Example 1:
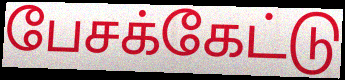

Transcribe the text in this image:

பேசக்கேட்டு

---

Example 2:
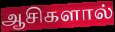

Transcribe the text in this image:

ஆசிகளால்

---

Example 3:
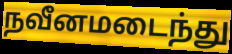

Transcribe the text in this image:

நவீனமடைந்து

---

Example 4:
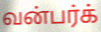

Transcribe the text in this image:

வன்பர்க்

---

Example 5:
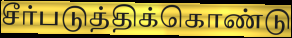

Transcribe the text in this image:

சீர்படுத்திக்கொண்டு